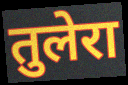
तुलेरा